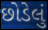
છોડેલું